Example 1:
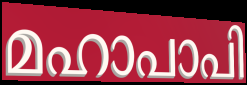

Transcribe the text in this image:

മഹാപാപി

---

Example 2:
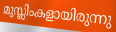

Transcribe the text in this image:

മുസ്ലിംകളായിരുന്നു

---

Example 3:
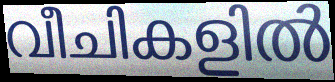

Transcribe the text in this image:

വീചികളിൽ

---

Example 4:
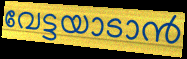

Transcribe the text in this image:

വേട്ടയാടാൻ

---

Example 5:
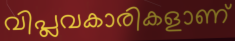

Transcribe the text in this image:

വിപ്ലവകാരികളാണ്